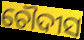
ଚୌଦୀସ